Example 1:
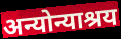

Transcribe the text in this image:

अन्योन्याश्रय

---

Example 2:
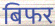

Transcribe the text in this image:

बिफर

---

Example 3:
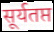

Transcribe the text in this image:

सूर्यतप्त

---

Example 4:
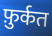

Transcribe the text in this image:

फ़ुर्कत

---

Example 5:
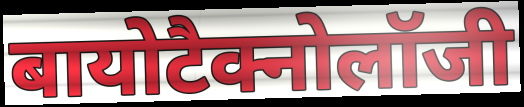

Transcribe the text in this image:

बायोटैक्नोलॉजी